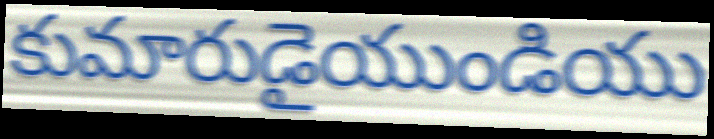
కుమారుడైయుండియు